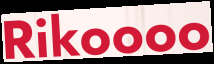
Rikoooo